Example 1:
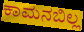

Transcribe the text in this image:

ಕಾಮನಬಿಲ್ಲ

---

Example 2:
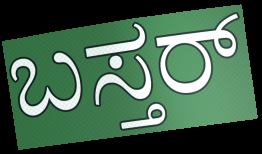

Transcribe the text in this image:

ಬಸ್ತರ್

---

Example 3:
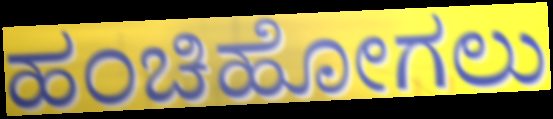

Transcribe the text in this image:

ಹಂಚಿಹೋಗಲು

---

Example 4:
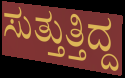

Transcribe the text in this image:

ಸುತ್ತುತ್ತಿದ್ದ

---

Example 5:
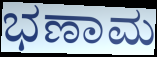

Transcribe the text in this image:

ಭಣಾಮ